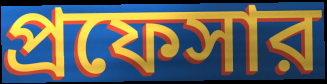
প্রফেসার